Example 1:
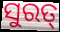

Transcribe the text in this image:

ସୁରତ୍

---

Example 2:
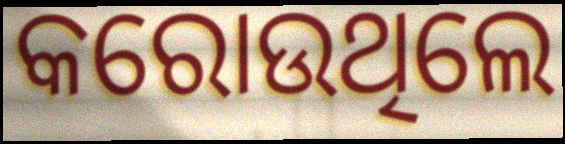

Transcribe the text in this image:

କରୋଉଥିଲେ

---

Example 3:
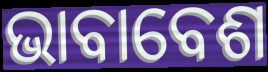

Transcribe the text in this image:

ଭାବାବେଶ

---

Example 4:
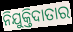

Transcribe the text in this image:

ନିଯୁକ୍ତିଦାତାର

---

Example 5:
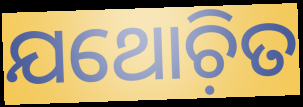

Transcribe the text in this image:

ଯଥୋଚ଼ିତ